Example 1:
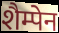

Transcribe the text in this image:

शैम्पेन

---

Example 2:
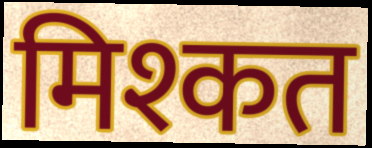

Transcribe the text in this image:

मिश्कत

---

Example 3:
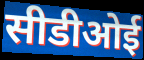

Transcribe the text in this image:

सीडीओई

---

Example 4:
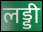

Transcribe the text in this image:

लड्डी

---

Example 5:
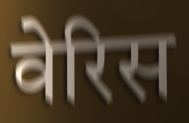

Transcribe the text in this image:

वेरिस